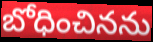
బోధించినను